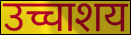
उच्चाशय